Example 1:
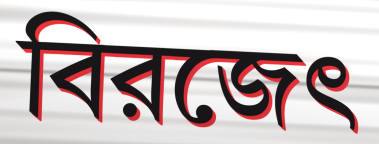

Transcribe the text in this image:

বিরজেৎ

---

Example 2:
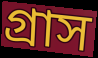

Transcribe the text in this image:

গ্রাস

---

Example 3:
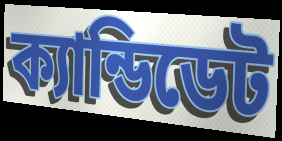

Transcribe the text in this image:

ক্যান্ডিডেট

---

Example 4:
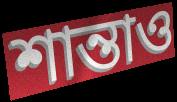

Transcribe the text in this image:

শান্তাও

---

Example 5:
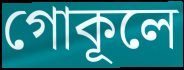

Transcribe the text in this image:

গোকূলে